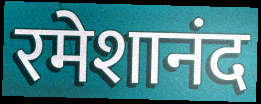
रमेशानंद